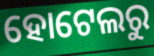
ହୋଟେଲରୁ